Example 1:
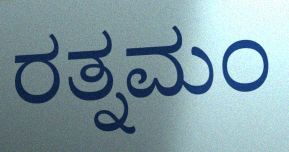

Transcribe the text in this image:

ರತ್ನಮಂ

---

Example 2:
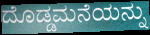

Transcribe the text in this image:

ದೊಡ್ಡಮನೆಯನ್ನು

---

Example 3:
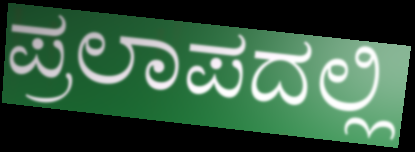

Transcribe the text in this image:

ಪ್ರಲಾಪದಲ್ಲಿ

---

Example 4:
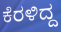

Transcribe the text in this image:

ಕೆರಳಿದ್ದ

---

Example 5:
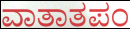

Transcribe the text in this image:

ವಾತಾತಪಂ